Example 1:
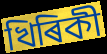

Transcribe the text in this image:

খিৰিকী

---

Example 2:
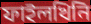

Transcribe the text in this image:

ফাইলখিনি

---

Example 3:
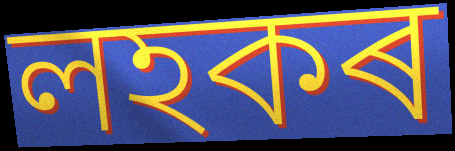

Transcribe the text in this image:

লহকৰ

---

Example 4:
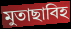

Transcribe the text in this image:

মুতাছাবিহ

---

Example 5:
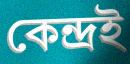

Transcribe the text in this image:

কেন্দ্ৰই